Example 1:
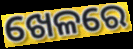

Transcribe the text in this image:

ଖେଳରେ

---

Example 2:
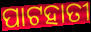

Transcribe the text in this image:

ପାଟହାତୀ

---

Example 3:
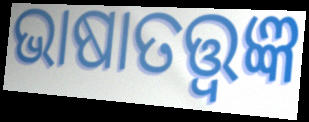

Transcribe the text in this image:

ଭାଷାତତ୍ତ୍ୱଜ୍ଞ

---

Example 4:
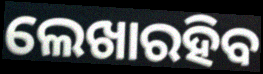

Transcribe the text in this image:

ଲେଖାରହିବ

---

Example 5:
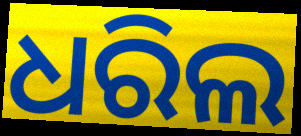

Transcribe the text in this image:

ଧରିଲ